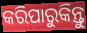
କରିପାରୁକିନ୍ତୁ